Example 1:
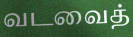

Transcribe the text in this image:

வடவைத்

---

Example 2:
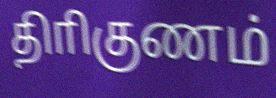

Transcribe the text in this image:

திரிகுணம்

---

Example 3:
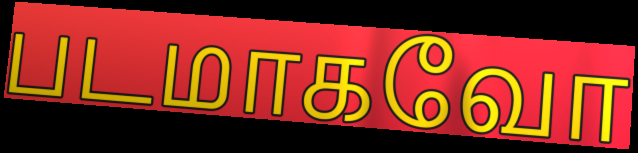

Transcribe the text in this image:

படமாகவோ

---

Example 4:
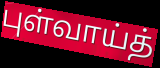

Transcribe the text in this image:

புள்வாய்த்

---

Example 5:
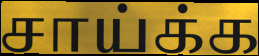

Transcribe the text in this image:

சாய்க்க